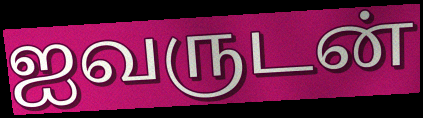
ஐவருடன்